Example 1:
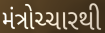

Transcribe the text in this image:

મંત્રોચ્ચારથી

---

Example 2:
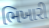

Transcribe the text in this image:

ભિખારી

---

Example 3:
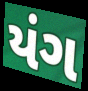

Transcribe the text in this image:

યંગ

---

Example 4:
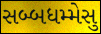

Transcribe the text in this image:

સબ્બધમ્મેસુ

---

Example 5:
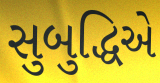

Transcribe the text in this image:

સુબુદ્ધિએ